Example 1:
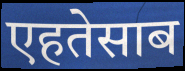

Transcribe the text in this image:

एहतेसाब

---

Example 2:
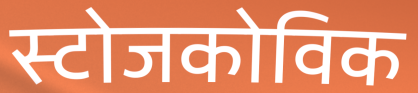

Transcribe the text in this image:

स्टोजकोविक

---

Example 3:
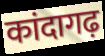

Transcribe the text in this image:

कांदागढ़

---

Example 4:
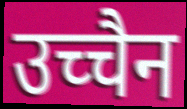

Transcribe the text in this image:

उच्चैन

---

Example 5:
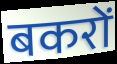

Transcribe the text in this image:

बकरों